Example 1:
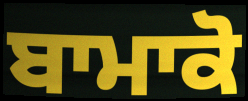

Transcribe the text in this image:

ਬਾਮਾਕੋ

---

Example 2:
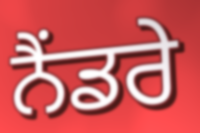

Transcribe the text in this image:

ਨੈਂਡਰੇ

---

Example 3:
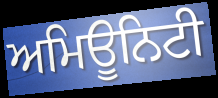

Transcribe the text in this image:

ਅਮਿਊਨਿਟੀ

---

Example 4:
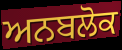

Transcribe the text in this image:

ਅਨਬਲੋਕ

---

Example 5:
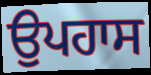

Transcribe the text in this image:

ਉਪਹਾਸ